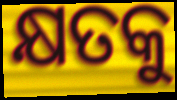
କ୍ଷତକୁ